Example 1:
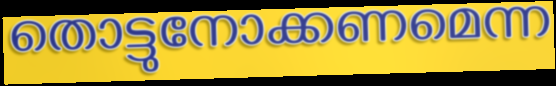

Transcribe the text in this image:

തൊട്ടുനോക്കണമെന്ന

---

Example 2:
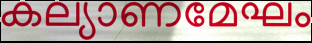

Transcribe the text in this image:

കല്യാണമേഘം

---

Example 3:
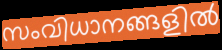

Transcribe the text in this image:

സംവിധാനങ്ങളിൽ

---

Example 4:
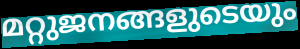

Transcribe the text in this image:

മറ്റുജനങ്ങളുടെയും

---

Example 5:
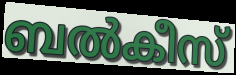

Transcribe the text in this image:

ബൽകീസ്